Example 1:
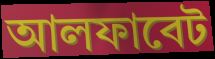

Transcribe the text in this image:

আলফাবেট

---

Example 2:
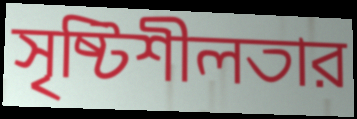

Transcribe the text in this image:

সৃষ্টিশীলতার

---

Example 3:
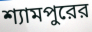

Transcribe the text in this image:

শ্যামপুরের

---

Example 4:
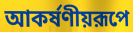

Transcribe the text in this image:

আকর্ষণীয়রূপে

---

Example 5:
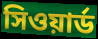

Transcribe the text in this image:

সিওয়ার্ড